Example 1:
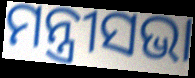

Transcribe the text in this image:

ମନ୍ତ୍ରୀସଭା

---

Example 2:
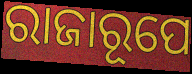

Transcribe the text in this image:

ରାଜାରୂପେ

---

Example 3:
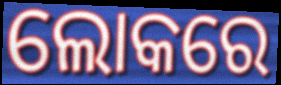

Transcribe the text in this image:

ଲୋକରେ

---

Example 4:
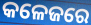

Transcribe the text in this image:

କଳେଜରେ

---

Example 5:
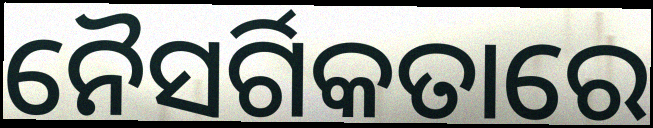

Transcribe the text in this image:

ନୈସର୍ଗିକତାରେ